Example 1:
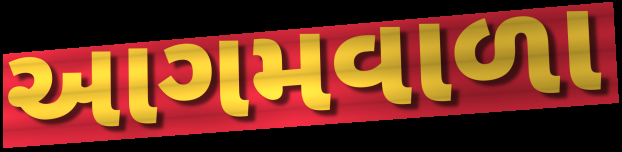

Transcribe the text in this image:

આગમવાળા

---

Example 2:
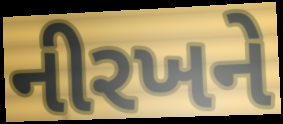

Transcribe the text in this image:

નીરખને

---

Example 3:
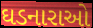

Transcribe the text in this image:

ઘડનારાઓ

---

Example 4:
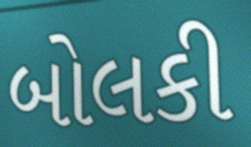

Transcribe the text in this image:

બોલકી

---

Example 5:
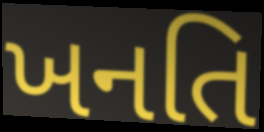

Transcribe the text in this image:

ખનતિ